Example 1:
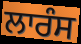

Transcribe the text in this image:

ਲਾਰੰਸ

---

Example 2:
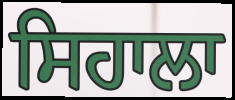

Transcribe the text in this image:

ਸਿਹਾਲਾ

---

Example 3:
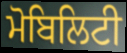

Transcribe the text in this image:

ਮੋਬਿਲਿਟੀ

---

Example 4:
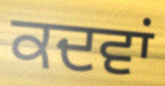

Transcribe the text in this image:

ਕਦਵਾਂ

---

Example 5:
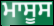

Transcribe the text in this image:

ਮਾਸੂਸ